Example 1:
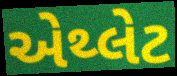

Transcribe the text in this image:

એથ્લેટ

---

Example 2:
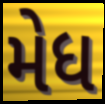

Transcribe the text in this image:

મેધ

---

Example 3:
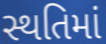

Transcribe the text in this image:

સ્થતિમાં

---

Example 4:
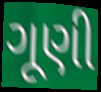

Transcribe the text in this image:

ગૂણી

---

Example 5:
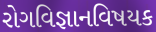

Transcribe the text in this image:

રોગવિજ્ઞાનવિષયક